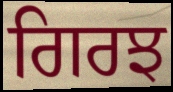
ਗਿਰਝ